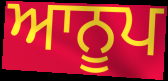
ਆਨੂਪ